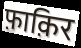
फ़ाक़िर